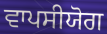
ਵਾਪਸੀਯੋਗ